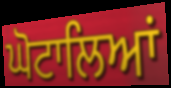
ਘੋਟਾਲਿਆਂ